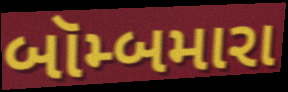
બૉમ્બમારા